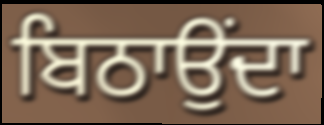
ਬਿਠਾਉਂਦਾ